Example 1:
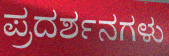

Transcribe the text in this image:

ಪ್ರದರ್ಶನಗಳು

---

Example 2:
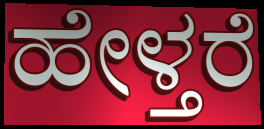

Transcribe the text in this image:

ಹೇಳ್ತರೆ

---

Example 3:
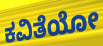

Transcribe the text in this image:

ಕವಿತೆಯೋ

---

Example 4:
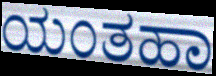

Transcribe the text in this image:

ಯಂತಹಾ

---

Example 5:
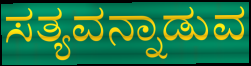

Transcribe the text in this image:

ಸತ್ಯವನ್ನಾಡುವ